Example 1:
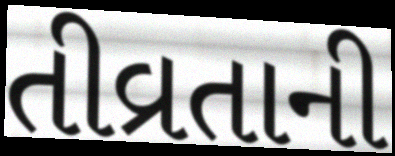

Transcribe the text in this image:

તીવ્રતાની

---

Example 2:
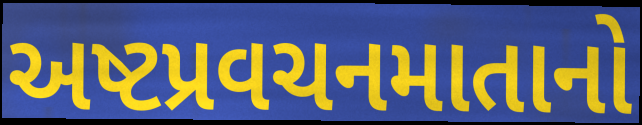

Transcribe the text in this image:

અષ્ટપ્રવચનમાતાનો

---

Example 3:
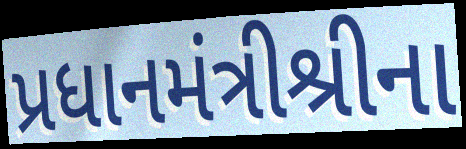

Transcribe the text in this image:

પ્રધાનમંત્રીશ્રીના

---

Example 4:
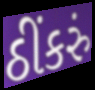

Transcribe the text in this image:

ઠીંકરું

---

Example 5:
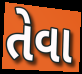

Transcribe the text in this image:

તેવા